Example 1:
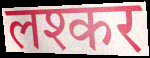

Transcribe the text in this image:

लश्‍कर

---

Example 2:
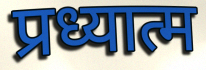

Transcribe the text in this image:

प्रध्यात्म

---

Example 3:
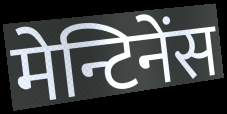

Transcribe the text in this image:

मेन्टिनेंस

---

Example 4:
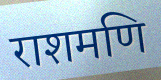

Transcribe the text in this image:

राशमणि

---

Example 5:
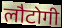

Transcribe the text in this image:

लौटोगी